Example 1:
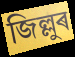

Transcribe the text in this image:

জিল্লুৰ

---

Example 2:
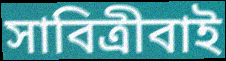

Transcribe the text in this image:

সাবিত্ৰীবাই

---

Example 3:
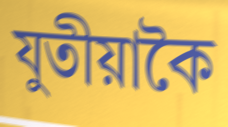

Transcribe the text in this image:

যুতীয়াকৈ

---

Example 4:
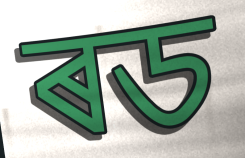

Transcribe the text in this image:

ৰড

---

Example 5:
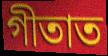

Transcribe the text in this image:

গীতাত